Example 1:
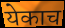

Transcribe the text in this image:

येकाच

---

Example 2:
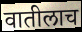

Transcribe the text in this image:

वातीलाच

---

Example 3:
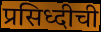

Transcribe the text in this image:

प्रसिध्दीची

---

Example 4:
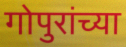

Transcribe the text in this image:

गोपुरांच्या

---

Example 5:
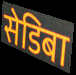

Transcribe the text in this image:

सेडिबा